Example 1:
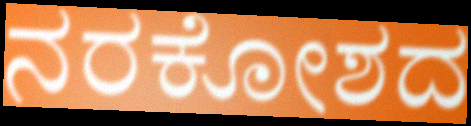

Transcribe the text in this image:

ನರಕೋಶದ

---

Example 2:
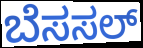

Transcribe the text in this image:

ಬೆಸಸಲ್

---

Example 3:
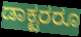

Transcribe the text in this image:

ಡಾಕ್ಟರರೂ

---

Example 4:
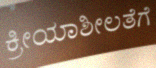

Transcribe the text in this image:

ಕ್ರೀಯಾಶೀಲತೆಗೆ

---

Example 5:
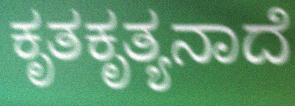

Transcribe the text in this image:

ಕೃತಕೃತ್ಯನಾದೆ